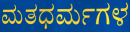
ಮತಧರ್ಮಗಳ